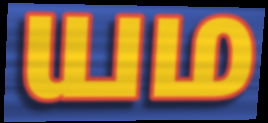
யம